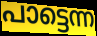
പാട്ടെന്ന